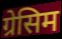
ग्रेसिम